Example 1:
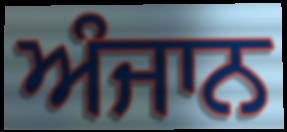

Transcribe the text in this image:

ਅੰਜਾਨ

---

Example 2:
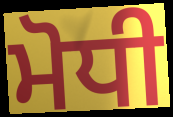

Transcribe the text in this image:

ਮੋਧੀ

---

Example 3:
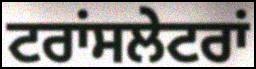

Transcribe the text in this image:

ਟਰਾਂਸਲੇਟਰਾਂ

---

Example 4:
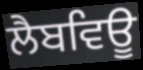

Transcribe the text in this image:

ਲੈਬਵਿਊ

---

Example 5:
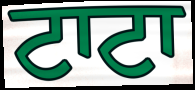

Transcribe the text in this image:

ਟਾਟਾ